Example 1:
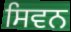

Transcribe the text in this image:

ਸਿਵਨ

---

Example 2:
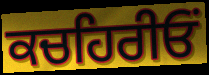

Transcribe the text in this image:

ਕਚਹਿਰੀਓਂ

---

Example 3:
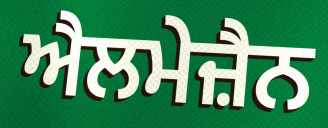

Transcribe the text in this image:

ਐਲਮੇਜ਼ੈਨ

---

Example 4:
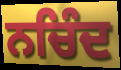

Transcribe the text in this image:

ਨਚਿੰਦ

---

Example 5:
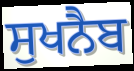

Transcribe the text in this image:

ਸੁਖਨੈਬ